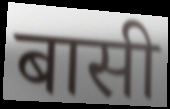
बासी